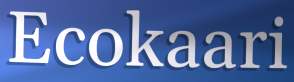
Ecokaari